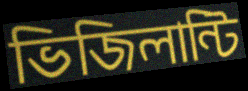
ভিজিলান্টি